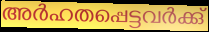
അർഹതപ്പെട്ടവർക്കു്